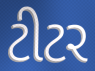
ટીટર